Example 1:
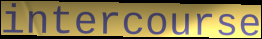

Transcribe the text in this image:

intercourse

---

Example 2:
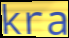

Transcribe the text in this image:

kra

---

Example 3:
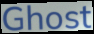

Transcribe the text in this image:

Ghost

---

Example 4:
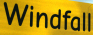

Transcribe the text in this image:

Windfall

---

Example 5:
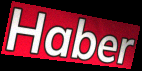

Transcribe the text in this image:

Haber